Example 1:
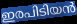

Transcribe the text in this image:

ഇരപിടിയൻ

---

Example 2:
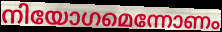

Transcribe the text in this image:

നിയോഗമെന്നോണം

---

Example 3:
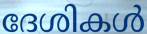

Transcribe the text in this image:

ദേശികൾ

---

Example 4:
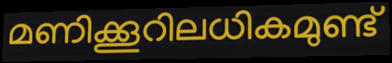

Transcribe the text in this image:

മണിക്കൂറിലധികമുണ്ട്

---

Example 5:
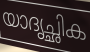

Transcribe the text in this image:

യാദൃച്ഛിക